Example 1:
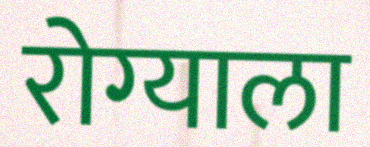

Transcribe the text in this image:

रोग्याला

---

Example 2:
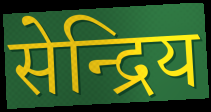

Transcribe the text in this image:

सेन्द्रिय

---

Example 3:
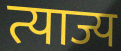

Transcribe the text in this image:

त्याज्य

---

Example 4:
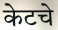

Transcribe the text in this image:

केटचे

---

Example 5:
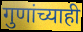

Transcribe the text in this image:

गुणांच्याही